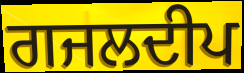
ਗਜਲਦੀਪ